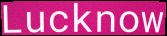
Lucknow